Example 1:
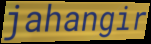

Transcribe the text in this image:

jahangir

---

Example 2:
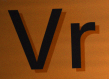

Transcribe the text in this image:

Vr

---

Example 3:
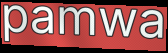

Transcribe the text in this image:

pamwa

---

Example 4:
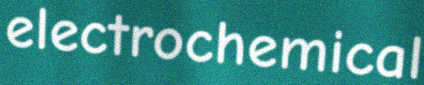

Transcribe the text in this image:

electrochemical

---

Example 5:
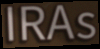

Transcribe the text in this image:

IRAs